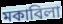
মকাবিলা